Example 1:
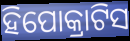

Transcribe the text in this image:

ହିପୋକ୍ରାଟିସ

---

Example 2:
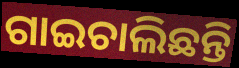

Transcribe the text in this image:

ଗାଇଚାଲିଛନ୍ତି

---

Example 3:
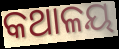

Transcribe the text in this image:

କଥାଳୟ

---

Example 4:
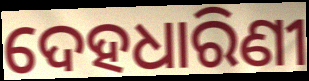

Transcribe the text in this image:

ଦେହଧାରିଣୀ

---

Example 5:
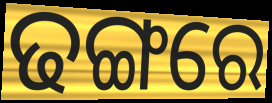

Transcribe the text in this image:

ଢଙ୍ଗରେ